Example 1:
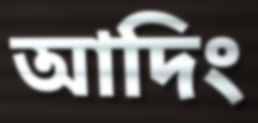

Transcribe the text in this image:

আদিং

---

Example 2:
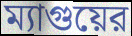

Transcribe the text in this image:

ম্যাগুয়ের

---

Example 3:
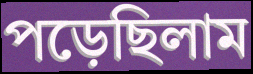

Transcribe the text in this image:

পড়েছিলাম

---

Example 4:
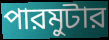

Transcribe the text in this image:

পারমুটার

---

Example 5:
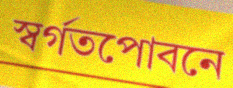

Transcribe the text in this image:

স্বর্গতপোবনে